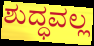
ಶುದ್ಧವಲ್ಲ